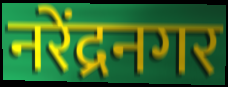
नरेंद्रनगर